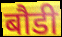
बौडी